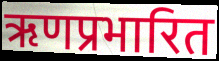
ॠणप्रभारित